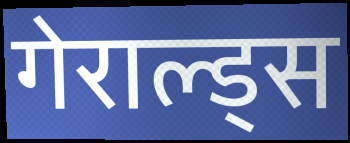
गेराल्ड्स